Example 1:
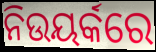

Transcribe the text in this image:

ନିଉୟର୍କରେ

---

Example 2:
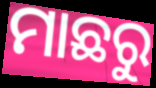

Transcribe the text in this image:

ମାଛରୁ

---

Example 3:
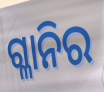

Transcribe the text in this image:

ଗ୍ଳାନିର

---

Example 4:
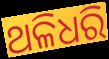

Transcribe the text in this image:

ଥଳିଧରି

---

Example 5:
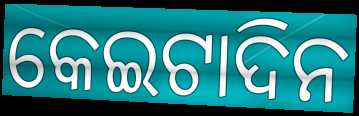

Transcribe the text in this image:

କେଇଟାଦିନ